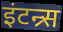
इंटन्र्स